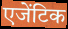
एजेंटिक